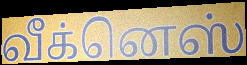
வீக்னெஸ்